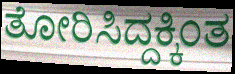
ತೋರಿಸಿದ್ದಕ್ಕಿಂತ